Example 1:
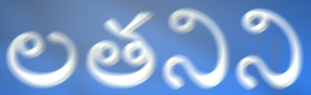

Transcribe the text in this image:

లతనిని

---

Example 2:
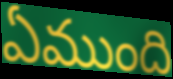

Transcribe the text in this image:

ఏముంది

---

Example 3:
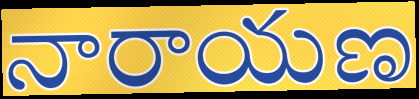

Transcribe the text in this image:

నారాయణ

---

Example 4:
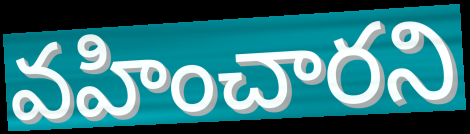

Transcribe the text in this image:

వహించారని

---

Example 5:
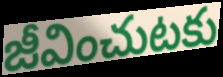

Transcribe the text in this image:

జీవించుటకు